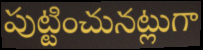
పుట్టించునట్లుగా